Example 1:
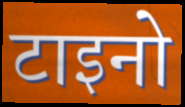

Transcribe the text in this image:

टाइनो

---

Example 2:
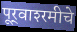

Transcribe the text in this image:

पूर्वाश्रमीचे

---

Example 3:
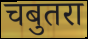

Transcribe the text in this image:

चबुतरा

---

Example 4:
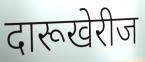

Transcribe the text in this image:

दारूखेरीज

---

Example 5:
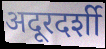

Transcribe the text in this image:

अदूरदर्शी